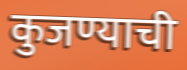
कुजण्याची